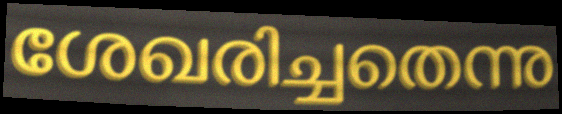
ശേഖരിച്ചതെന്നു